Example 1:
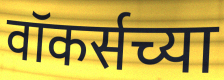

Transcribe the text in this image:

वॉकर्सच्या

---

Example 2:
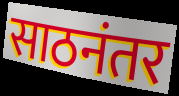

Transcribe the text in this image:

साठनंतर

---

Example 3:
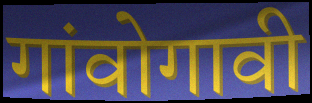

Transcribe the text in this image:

गांवोगावी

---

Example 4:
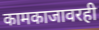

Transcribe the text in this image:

कामकाजावरही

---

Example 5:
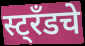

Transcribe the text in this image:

स्ट्रँडचे